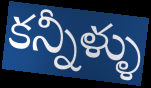
కన్నీళ్ళు